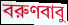
বরুণবাবু